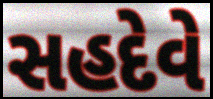
સહદેવે